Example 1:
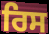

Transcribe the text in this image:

ਰਿਸ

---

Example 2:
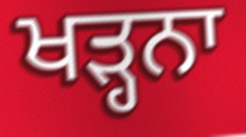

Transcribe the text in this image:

ਖੜ੍ਹਨਾ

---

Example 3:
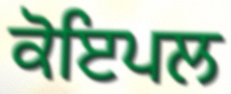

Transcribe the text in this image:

ਕੋਇਪਲ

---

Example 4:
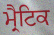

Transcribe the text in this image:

ਮ੍ਰੈਟਿਕ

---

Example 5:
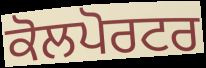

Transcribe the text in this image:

ਕੋਲਪੋਰਟਰ